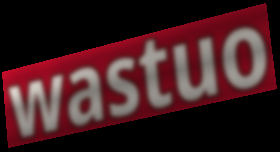
wastuo